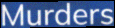
Murders